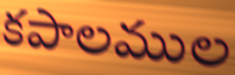
కపాలముల